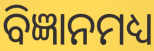
ବିଜ୍ଞାନମଧ୍ୟ